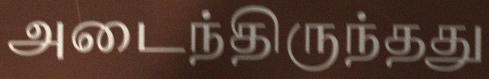
அடைந்திருந்தது